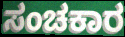
ಸಂಚಕಾರ